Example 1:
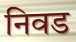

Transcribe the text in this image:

निवड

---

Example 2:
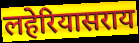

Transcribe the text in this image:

लहेरियासराय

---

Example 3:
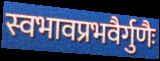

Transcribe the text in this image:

स्वभावप्रभवैर्गुणैः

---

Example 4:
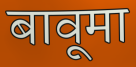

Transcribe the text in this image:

बावूमा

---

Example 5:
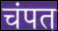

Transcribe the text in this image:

चंपत